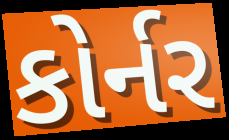
કોર્નર